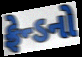
ફ્રેન્ડનો